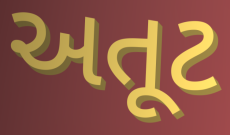
અતૂટ